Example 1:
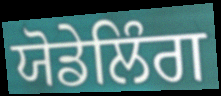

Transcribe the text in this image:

ਯੋਡੇਲਿੰਗ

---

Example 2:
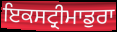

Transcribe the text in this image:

ਇਕਸਟ੍ਰੀਮਾਡੁਰਾ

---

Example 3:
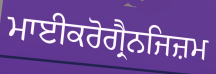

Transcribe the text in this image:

ਮਾਈਕਰੋਗ੍ਰੈਨਜਿਜ਼ਮ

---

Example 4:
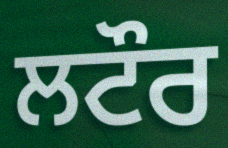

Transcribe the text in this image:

ਲਟੌਰ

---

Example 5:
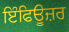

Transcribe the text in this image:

ਇੰਫਿਊਜ਼ਰ